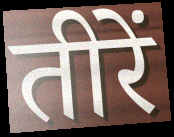
तीरें